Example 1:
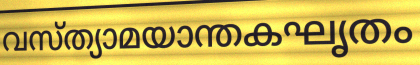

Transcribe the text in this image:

വസ്ത്യാമയാന്തകഘൃതം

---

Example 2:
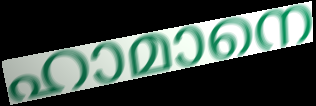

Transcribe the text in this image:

ഹാമാനെ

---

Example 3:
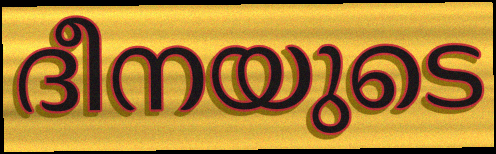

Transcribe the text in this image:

ദീനയുടെ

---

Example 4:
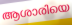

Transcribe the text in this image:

ആശാരിയെ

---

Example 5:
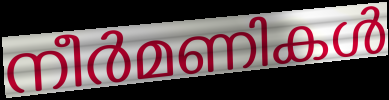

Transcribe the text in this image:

നീർമണികൾ